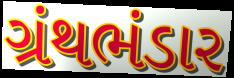
ગ્રંથભંડાર